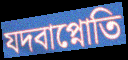
যদবাপ্নোতি